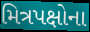
મિત્રપક્ષોના